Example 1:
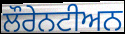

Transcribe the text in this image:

ਲੌਰੇਨਟੀਅਨ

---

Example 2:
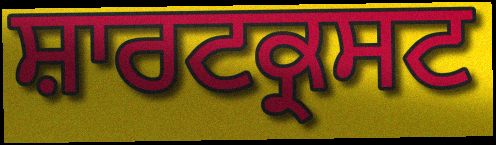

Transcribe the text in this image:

ਸ਼ਾਰਟਕ੍ਰਸਟ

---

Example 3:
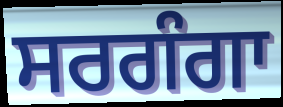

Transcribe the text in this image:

ਸਰਗੰਗਾ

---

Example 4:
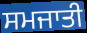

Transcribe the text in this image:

ਸਮਜਾਤੀ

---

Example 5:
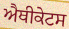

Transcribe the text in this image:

ਐਥੀਕੇਟਸ